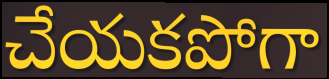
చేయకపోగా